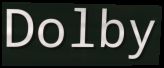
Dolby